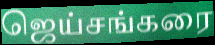
ஜெய்சங்கரை